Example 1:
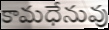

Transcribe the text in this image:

కామధేనువు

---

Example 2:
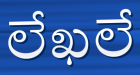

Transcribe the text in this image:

లేఖలే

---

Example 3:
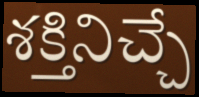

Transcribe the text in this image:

శక్తినిచ్చే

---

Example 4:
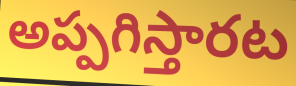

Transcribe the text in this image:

అప్పగిస్తారట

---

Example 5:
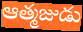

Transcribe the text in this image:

ఆత్మజుడు